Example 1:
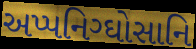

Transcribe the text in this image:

અપ્પનિગ્ઘોસાનિ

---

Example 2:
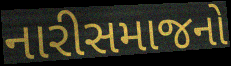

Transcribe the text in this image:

નારીસમાજનો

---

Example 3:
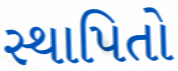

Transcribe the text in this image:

સ્થાપિતો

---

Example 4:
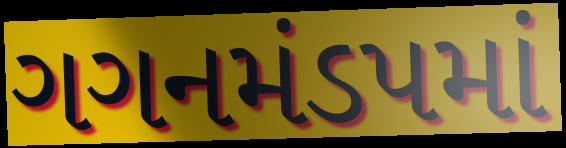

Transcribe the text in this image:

ગગનમંડપમાં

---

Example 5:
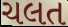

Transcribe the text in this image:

ચલત